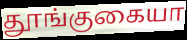
தூங்குகையா